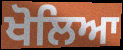
ਖੋਲਿਆ